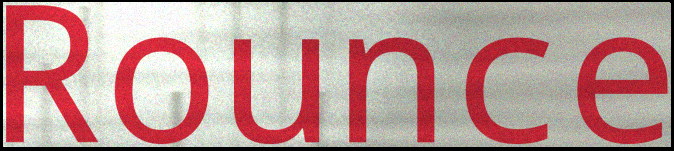
Rounce